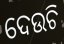
ଦେଉଚି